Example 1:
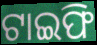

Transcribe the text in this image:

ଟାଇଫି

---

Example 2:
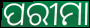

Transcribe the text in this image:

ପରୀମା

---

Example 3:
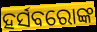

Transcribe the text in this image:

ହର୍ସବରୋଙ୍କ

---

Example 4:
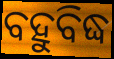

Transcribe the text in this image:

ବହୁବିଦ୍ଧ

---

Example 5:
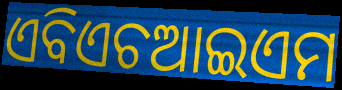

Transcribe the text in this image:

ଏବିଏଚଆଇଏମ